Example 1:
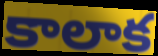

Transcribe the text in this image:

కాలాక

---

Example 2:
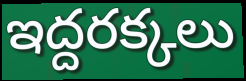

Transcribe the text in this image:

ఇద్దరక్కలు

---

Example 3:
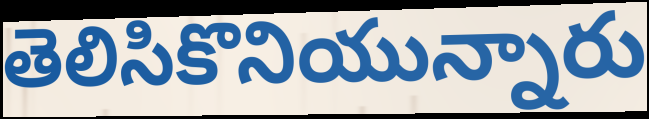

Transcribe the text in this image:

తెలిసికొనియున్నారు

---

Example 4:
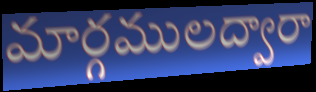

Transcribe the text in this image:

మార్గములద్వారా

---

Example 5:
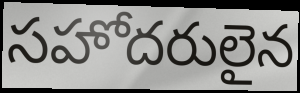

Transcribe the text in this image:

సహోదరులైన